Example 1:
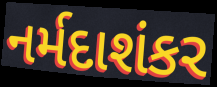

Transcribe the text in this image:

નર્મદાશંકર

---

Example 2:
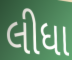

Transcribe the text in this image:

લીધા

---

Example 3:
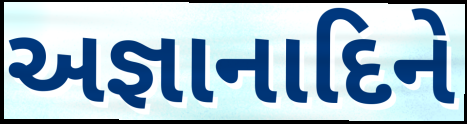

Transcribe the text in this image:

અજ્ઞાનાદિને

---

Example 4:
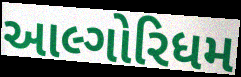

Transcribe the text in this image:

આલ્ગોરિધમ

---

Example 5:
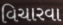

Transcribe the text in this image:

વિચારવા